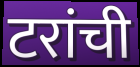
टरांची